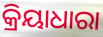
କ୍ରିୟାଧାରା